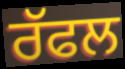
ਰੱਫਲ